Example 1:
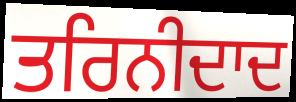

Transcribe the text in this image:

ਤਰਿਨੀਦਾਦ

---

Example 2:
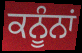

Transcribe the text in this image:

ਕਨੂੰਨਾਂ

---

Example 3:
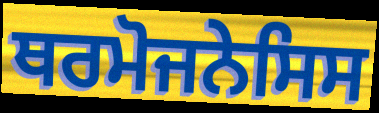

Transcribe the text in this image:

ਥਰਮੋਜਨੇਸਿਸ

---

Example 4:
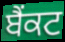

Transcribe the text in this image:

ਬੈਂਕਟ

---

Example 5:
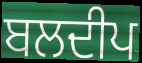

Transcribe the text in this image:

ਬਲਦੀਪ